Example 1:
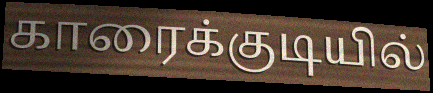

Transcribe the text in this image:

காரைக்குடியில்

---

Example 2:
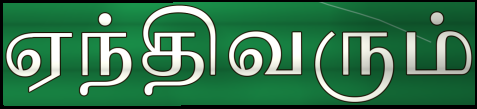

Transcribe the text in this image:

ஏந்திவரும்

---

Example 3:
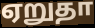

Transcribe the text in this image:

ஏறுதா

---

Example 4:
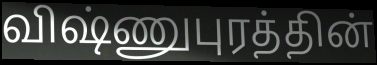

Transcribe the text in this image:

விஷ்ணுபுரத்தின்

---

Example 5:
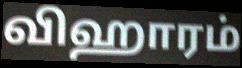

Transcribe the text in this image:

விஹாரம்